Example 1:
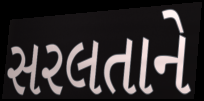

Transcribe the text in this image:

સરલતાને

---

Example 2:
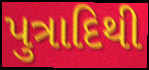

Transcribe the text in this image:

પુત્રાદિથી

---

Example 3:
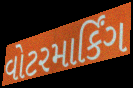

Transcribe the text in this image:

વોટરમાર્કિંગ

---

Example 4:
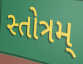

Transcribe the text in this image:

સ્તોત્રમ્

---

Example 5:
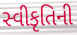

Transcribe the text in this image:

સ્વીકૃતિની